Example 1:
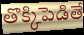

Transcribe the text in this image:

తొక్కిపెడితే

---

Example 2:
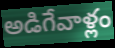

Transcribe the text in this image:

అడిగేవాళ్లం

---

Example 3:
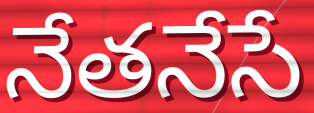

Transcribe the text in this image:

నేతనేసే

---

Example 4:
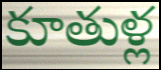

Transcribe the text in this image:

కూతుళ్ల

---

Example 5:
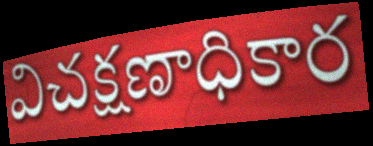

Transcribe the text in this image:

విచక్షణాధికార